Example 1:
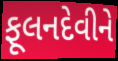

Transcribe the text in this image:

ફૂલનદેવીને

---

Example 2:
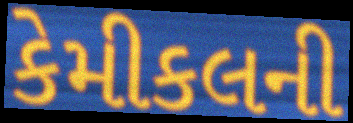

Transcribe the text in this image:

કેમીકલની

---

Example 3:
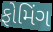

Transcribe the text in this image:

ફોમિંગ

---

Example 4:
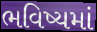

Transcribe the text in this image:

ભવિષ્યમાં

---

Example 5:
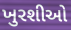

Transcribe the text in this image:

ખુરશીઓ